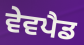
ਵੇਵਪੈਡ